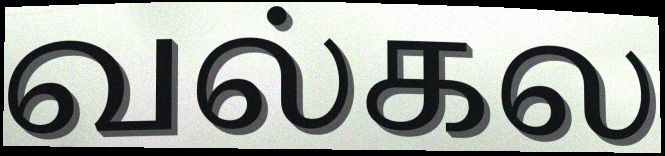
வல்கல